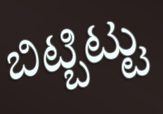
ಬಿಟ್ಬಿಟ್ಟು